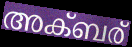
അക്ബര്